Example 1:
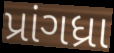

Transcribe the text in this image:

પ્રાંગધ્રા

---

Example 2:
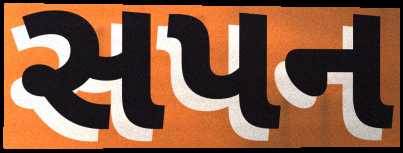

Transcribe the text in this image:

સપન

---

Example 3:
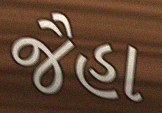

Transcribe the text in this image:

જૈહા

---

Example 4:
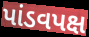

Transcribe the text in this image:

પાંડવપક્ષ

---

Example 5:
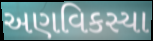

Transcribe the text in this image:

અણવિકસ્યા